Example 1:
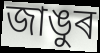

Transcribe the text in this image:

জাঙুৰ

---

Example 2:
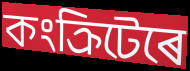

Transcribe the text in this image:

কংক্ৰিটেৰে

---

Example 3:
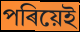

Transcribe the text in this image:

পৰিয়েই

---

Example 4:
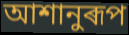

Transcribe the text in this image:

আশানুৰূপ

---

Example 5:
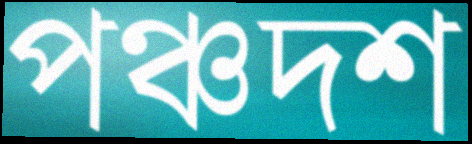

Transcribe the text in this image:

পঞ্চদশ